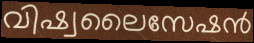
വിഷ്വലൈസേഷൻ